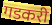
गडकरी